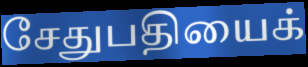
சேதுபதியைக்